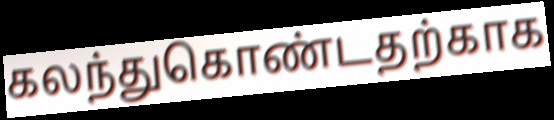
கலந்துகொண்டதற்காக